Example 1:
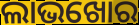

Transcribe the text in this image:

ଲାଭଖୋର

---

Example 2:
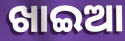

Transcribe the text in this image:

ଖାଇଆ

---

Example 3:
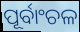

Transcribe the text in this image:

ପୂର୍ବାଂଚଳ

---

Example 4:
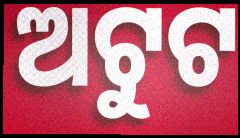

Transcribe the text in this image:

ଅଟୁଟ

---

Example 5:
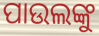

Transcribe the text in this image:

ପାଉଲଙ୍କୁ